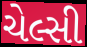
ચેલ્સી